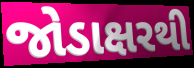
જોડાક્ષરથી